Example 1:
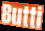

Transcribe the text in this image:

Butti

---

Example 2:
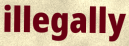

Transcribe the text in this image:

illegally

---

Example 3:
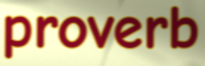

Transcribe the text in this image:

proverb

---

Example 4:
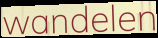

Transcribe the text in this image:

wandelen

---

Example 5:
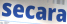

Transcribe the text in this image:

secara